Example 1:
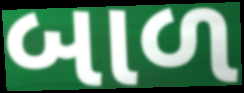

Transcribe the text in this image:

બાળ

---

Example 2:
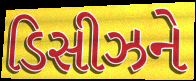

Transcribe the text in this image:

ડિસીઝને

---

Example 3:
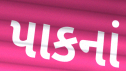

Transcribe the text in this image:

પાકનાં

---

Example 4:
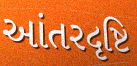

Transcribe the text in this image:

આંતરદૃષ્ટિ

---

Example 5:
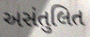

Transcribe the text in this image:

અસંતુલિત